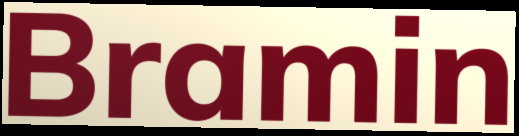
Bramin